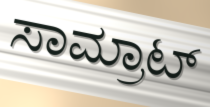
ಸಾಮ್ರಾಟ್